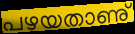
പഴയതാണു്